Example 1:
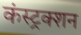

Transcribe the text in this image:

कंस्ट्रक्शन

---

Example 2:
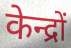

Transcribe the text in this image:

केन्द्रों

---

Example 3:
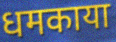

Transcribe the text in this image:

धमकाया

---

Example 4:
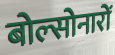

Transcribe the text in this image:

बोल्सोनारों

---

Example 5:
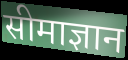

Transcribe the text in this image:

सीमाज्ञान